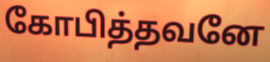
கோபித்தவனே